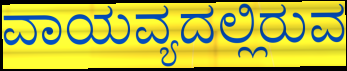
ವಾಯವ್ಯದಲ್ಲಿರುವ